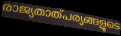
രാജ്യതാത്പര്യങ്ങളുടെ